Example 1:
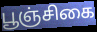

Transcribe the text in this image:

பூஞ்சிகை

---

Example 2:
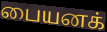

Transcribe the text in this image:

பையனக்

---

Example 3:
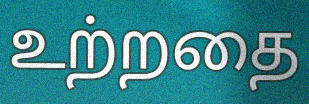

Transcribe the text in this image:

உற்றதை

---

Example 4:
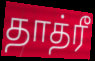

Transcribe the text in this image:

தாத்ரீ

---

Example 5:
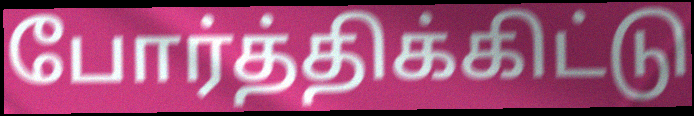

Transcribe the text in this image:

போர்த்திக்கிட்டு